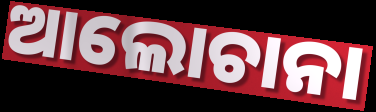
ଆଲୋଚାନା